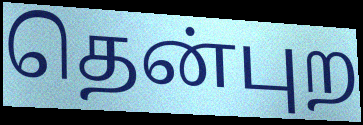
தென்புற